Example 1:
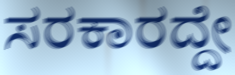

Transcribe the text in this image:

ಸರಕಾರದ್ದೇ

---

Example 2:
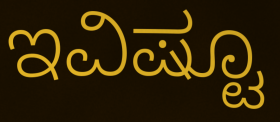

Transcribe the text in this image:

ಇವಿಷ್ಟೂ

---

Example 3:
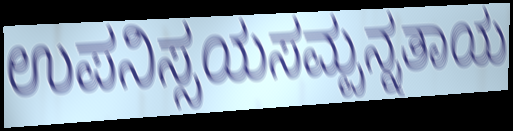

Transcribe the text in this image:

ಉಪನಿಸ್ಸಯಸಮ್ಪನ್ನತಾಯ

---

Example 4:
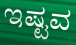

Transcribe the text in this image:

ಇಷ್ಟವ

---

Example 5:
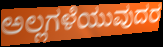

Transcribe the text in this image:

ಅಲ್ಲಗಳೆಯುವುದರ